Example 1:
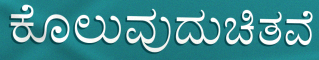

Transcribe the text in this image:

ಕೊಲುವುದುಚಿತವೆ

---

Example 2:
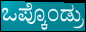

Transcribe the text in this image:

ಒಪ್ಕೊಂಡ್ರು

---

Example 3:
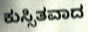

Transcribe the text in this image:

ಕುಸ್ಸಿತವಾದ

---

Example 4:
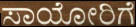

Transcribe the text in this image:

ಸಾಯೋರಿಗೆ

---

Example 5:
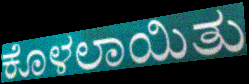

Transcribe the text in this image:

ಕೊಳಲಾಯಿತು